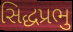
સિદ્ધપ્રભુ